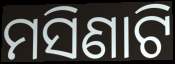
ମସିଣାଟି